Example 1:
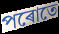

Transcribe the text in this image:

পৰোতে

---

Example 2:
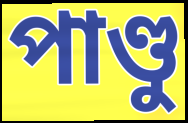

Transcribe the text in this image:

পাণ্ডু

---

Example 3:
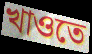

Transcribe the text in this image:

খাওতে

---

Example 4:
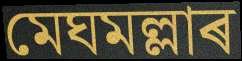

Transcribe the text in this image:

মেঘমল্লাৰ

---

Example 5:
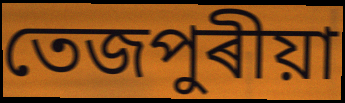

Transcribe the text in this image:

তেজপুৰীয়া